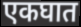
एकघात